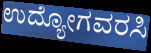
ಉದ್ಯೋಗವರಸಿ